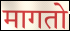
मागतो